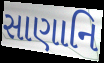
સાણાનિ